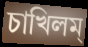
চাখিলম্